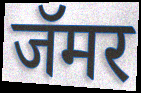
जॅमर